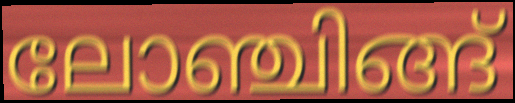
ലോഞ്ചിങ്ങ്